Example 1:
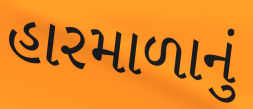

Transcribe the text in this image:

હારમાળાનું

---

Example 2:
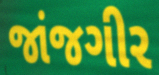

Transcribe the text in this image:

જાંજગીર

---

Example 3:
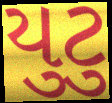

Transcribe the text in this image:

યુટુ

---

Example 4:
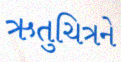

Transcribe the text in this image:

ઋતુચિત્રને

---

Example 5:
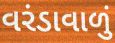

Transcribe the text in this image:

વરંડાવાળું